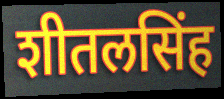
शीतलसिंह